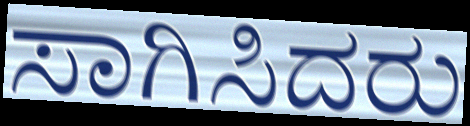
ಸಾಗಿಸಿದರು